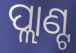
ପ୍ଲାଣ୍ଟ